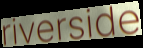
riverside